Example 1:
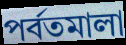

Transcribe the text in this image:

পর্বতমালা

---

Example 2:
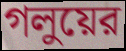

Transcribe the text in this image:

গলুয়ের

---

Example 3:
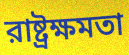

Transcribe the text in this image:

রাষ্ট্রক্ষমতা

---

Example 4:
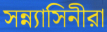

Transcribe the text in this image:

সন্ন্যাসিনীরা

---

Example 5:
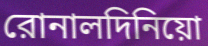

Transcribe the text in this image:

রোনালদিনিয়ো